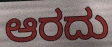
ಆರದು